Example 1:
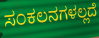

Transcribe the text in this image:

ಸಂಕಲನಗಳಲ್ಲದೆ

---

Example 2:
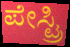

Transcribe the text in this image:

ಪೇಸ್ಟ್ರಿ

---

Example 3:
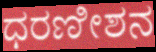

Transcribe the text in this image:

ಧರಣೀಶನ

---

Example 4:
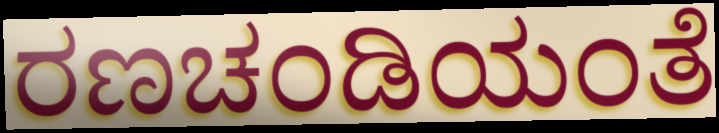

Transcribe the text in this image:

ರಣಚಂಡಿಯಂತೆ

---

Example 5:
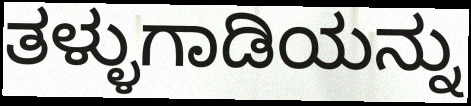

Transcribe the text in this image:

ತಳ್ಳುಗಾಡಿಯನ್ನು